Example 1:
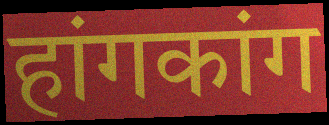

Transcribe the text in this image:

हांगकांग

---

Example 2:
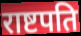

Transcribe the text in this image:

राष्टपति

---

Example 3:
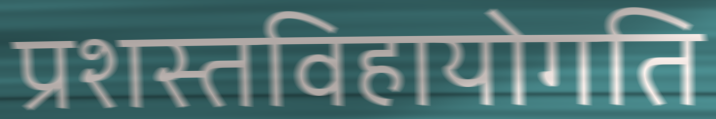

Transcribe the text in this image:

प्रशस्तविहायोगति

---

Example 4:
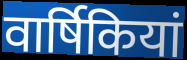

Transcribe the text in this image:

वार्षिकियां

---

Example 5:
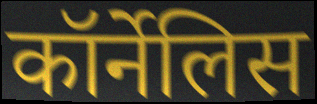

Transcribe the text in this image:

कॉर्नेलिस